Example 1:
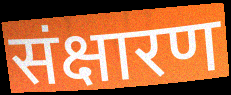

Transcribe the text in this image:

संक्षारण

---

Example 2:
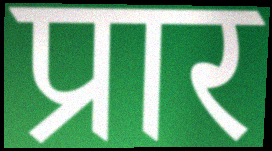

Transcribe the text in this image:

प्रार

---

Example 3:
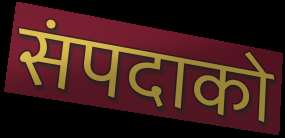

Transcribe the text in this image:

संपदाको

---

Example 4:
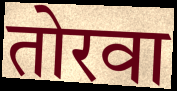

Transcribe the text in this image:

तोरवा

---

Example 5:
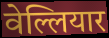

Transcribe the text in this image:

वेल्लियार